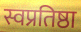
स्वप्रतिष्ठा